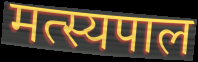
मत्स्यपाल